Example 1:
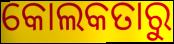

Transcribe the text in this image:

କୋଲକତାରୁ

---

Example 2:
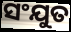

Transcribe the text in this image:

ସଂଯୁତ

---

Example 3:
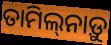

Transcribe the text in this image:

ତାମିଲ୍‌ନାଡ଼ୁ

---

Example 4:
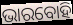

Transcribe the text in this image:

ଭାରବୋହି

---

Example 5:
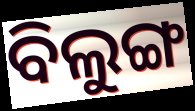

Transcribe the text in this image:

ବିଲୁଙ୍ଗ